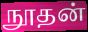
நூதன்